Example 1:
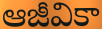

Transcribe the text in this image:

ఆజీవికా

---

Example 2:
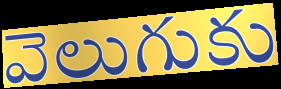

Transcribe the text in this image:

వెలుగుకు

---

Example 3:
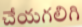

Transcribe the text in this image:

చేయగలిగి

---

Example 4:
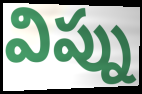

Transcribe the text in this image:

విప్ను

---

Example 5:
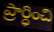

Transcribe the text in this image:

ప్రార్ధించి